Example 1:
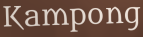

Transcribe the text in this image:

Kampong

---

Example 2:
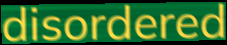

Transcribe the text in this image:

disordered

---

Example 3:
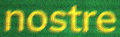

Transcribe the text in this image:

nostre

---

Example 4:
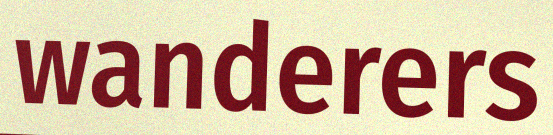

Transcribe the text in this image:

wanderers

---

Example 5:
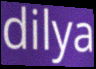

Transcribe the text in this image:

dilya